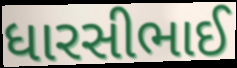
ધારસીભાઈ